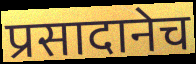
प्रसादानेच